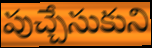
పుచ్చేసుకుని